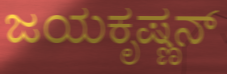
ಜಯಕೃಷ್ಣನ್